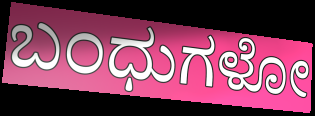
ಬಂಧುಗಳೋ